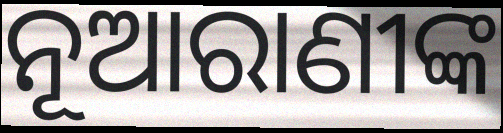
ନୂଆରାଣୀଙ୍କ